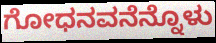
ಗೋಧನವನೆನ್ನೊಳು